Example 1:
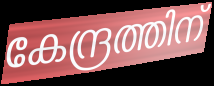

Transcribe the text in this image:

കേന്ദ്രത്തിന്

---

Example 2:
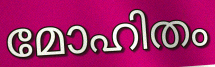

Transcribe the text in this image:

മോഹിതം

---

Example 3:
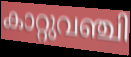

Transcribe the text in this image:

കാറ്റുവഞ്ചി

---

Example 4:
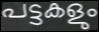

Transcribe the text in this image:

പട്ടകളും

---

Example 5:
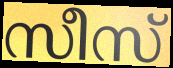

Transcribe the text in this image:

സീസ്